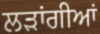
ਲੜਾਂਗੀਆਂ